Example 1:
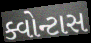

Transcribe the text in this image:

ક્વોન્ટાસ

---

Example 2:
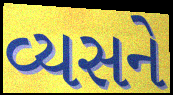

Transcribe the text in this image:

વ્યસને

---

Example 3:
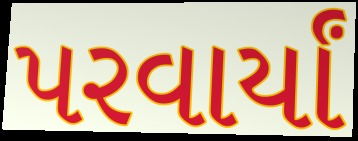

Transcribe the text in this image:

પરવાર્યાં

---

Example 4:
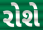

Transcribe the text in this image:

રોશે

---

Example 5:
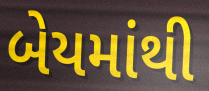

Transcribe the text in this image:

બેયમાંથી